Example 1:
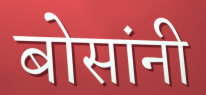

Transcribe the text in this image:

बोसांनी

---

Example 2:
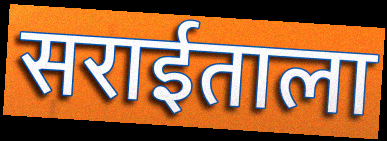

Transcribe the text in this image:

सराईताला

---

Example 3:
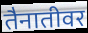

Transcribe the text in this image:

तैनातीवर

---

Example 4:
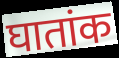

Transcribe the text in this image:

घातांक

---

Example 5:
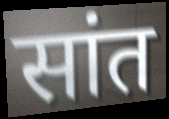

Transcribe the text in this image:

सांत